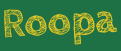
Roopa